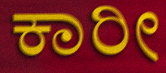
ಕಾರೀ